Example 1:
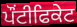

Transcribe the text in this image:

ਪੌਂਟੀਫਿਕੇਟ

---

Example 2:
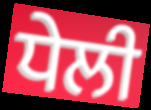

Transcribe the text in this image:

ਧੇਲੀ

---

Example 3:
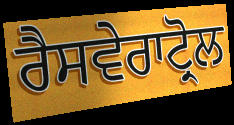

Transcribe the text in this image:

ਰੈਸਵੇਰਾਟ੍ਰੋਲ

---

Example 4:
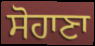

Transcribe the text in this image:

ਸੋਹਾਣਾ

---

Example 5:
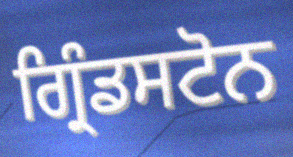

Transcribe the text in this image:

ਗ੍ਰਿੰਡਸਟੋਨ